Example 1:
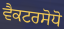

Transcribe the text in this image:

ਵੈਕਟਰਸੋਧੋ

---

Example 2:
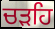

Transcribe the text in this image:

ਚੜਹਿ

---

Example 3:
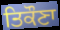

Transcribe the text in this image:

ਤਿਕੌਣਾ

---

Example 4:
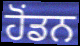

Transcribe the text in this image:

ਹੋਂਡਨ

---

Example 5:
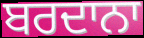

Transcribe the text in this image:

ਬਰਦਾਨਾ